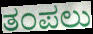
ತಂಪಲು